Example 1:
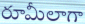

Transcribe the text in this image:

రూమీలాగా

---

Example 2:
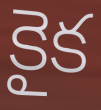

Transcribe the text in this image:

కైక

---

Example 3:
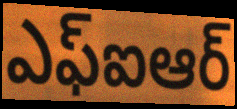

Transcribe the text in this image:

ఎఫ్ఐఆర్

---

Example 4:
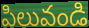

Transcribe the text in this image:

పిలువండి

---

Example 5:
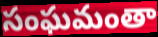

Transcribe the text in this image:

సంఘమంతా